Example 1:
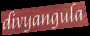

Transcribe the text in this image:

divyangula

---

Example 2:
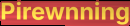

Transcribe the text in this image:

Pirewnning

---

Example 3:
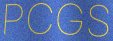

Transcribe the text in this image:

PCGS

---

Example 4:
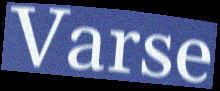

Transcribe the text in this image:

Varse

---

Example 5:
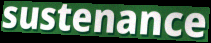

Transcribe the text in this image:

sustenance